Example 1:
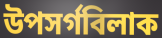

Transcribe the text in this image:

উপসৰ্গবিলাক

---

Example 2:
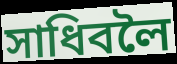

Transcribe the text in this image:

সাধিবলৈ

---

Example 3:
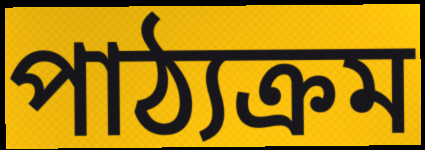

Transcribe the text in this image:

পাঠ্যক্ৰম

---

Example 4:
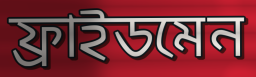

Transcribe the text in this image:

ফ্ৰাইডমেন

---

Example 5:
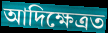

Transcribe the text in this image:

আদিক্ষেত্ৰত